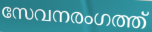
സേവനരംഗത്ത്